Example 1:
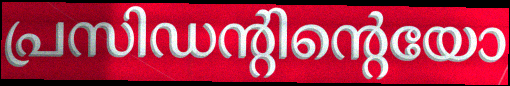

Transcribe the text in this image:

പ്രസിഡന്റിന്റെയോ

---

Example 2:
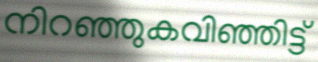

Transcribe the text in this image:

നിറഞ്ഞുകവിഞ്ഞിട്ട്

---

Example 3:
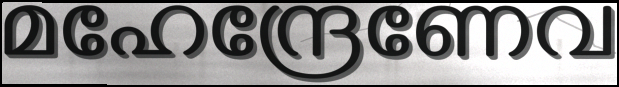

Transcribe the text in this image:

മഹേന്ദ്രേണേവ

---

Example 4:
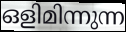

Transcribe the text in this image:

ഒളിമിന്നുന്ന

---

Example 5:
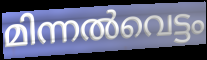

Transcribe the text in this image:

മിന്നൽവെട്ടം